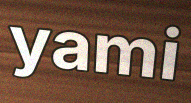
yami